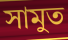
সামুত